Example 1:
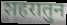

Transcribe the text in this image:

शहरातुन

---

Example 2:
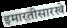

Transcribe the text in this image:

इमारतीसारखे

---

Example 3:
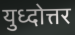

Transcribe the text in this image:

युध्दोत्तर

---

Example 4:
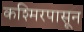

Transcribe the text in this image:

कश्मिरपासून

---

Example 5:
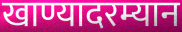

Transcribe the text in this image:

खाण्यादरम्यान